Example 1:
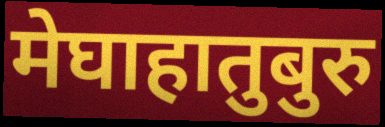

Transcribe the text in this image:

मेघाहातुबुरु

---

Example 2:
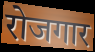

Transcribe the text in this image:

रोजगार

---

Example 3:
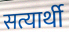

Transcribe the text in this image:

सत्यार्थी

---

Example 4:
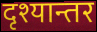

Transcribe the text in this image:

दृश्यान्तर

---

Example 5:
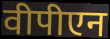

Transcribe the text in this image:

वीपीएन